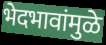
भेदभावांमुळे